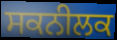
ਸਕਨੀਲਕ